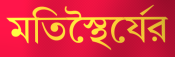
মতিস্থৈর্যের